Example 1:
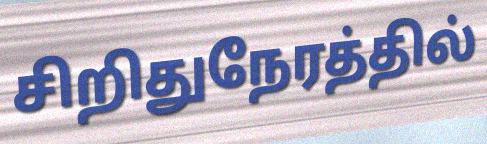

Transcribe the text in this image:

சிறிதுநேரத்தில்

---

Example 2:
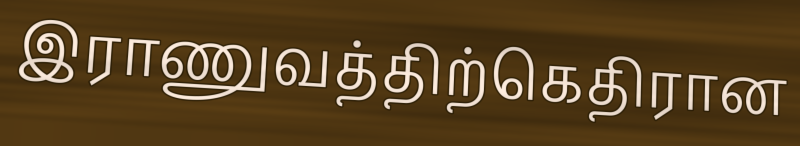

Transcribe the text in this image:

இராணுவத்திற்கெதிரான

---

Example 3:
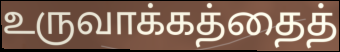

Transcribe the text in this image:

உருவாக்கத்தைத்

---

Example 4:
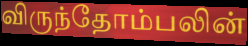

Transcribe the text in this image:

விருந்தோம்பலின்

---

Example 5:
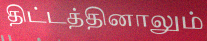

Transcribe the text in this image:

திட்டத்தினாலும்